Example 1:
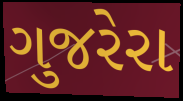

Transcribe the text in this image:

ગુજરેરા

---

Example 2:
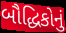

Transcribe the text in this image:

બૌદ્ધિકોનું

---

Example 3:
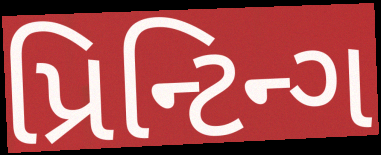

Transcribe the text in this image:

પ્રિન્ટિન્ગ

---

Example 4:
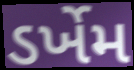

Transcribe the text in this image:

ડર્ખેમ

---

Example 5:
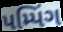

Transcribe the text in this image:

પમ્પિંગ